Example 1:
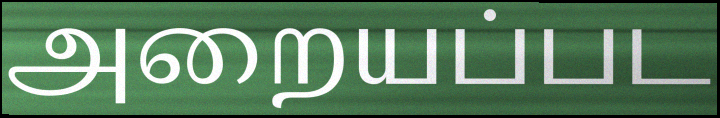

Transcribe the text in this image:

அறையப்பட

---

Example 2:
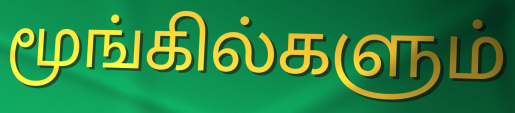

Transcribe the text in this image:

மூங்கில்களும்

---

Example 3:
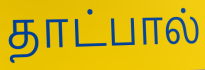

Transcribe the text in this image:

தாட்பால்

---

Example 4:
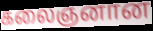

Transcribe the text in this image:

கலைஞனான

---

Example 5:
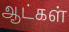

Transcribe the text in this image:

ஆட்கள்